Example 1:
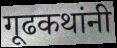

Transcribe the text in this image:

गूढकथांनी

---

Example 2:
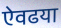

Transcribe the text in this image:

ऐवढया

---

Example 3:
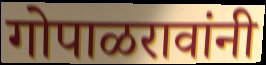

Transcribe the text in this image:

गोपाळरावांनी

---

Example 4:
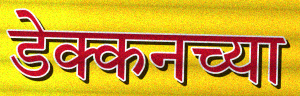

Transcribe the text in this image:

डेक्कनच्या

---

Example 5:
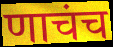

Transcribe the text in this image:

णाचंच